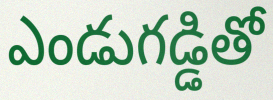
ఎండుగడ్డితో